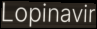
Lopinavir